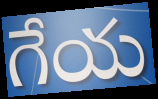
గేయ